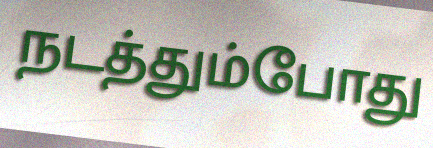
நடத்தும்போது